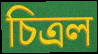
চিত্ৰল